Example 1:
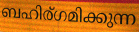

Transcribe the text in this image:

ബഹിര്ഗമിക്കുന്ന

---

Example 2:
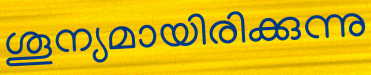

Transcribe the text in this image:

ശൂന്യമായിരിക്കുന്നു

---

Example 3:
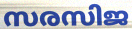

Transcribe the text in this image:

സരസിജ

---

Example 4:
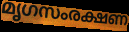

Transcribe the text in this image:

മൃഗസംരക്ഷണ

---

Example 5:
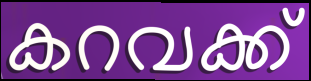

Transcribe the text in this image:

കറവക്ക്